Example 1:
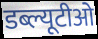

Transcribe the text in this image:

डब्ल्यूटीओ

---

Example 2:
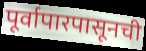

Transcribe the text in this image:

पूर्वापारपासूनची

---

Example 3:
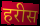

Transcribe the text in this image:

हरीस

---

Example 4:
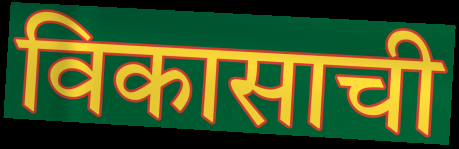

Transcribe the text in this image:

विकासाची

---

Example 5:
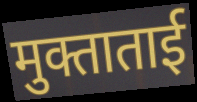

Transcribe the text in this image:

मुक्ताताई